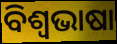
ବିଶ୍ୱଭାଷା